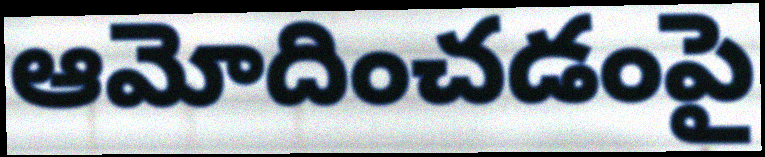
ఆమోదించడంపై